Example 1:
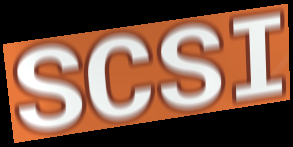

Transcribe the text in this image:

SCSI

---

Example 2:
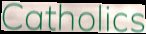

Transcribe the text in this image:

Catholics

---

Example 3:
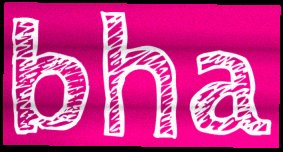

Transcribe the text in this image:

bha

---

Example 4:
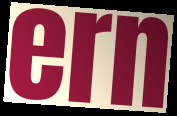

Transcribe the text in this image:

ern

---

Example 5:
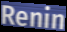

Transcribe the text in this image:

Renin